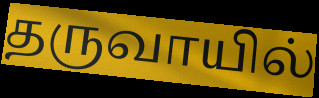
தருவாயில்